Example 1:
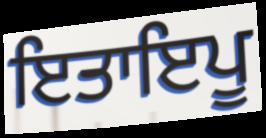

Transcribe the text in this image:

ਇਤਾਇਪੂ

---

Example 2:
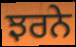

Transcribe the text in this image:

ਝਰਨੇ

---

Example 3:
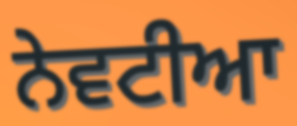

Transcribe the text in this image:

ਨੇਵਟੀਆ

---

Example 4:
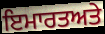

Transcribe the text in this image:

ਇਮਾਰਤਅਤੇ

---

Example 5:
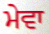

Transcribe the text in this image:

ਮੇਵਾ